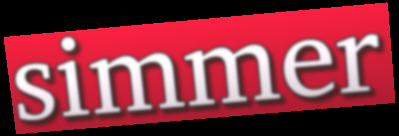
simmer